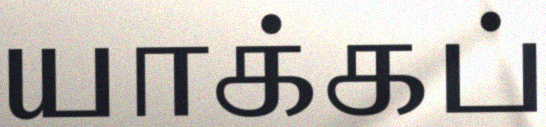
யாக்கப்